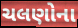
ચલણોના